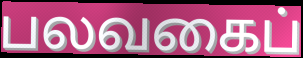
பலவகைப்